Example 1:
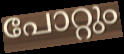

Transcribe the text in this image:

പോറ്റും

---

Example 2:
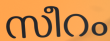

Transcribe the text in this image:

സീറം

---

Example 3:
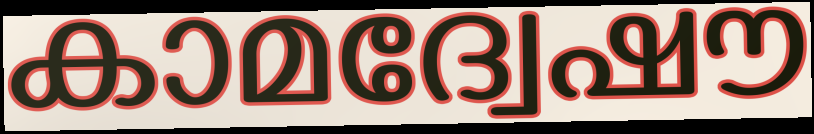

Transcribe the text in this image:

കാമദ്വേഷൗ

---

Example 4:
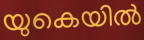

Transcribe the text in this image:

യുകെയിൽ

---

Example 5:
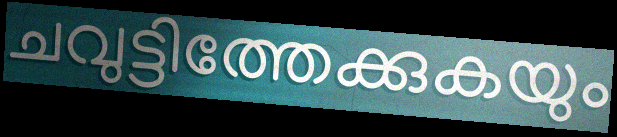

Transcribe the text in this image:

ചവുട്ടിത്തേക്കുകയും